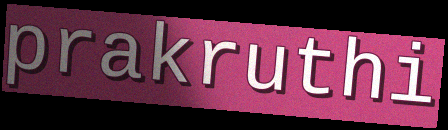
prakruthi